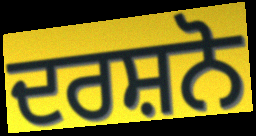
ਦਰਸ਼ਨੋ